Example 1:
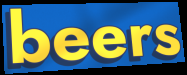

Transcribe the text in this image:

beers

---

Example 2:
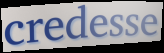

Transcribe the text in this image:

credesse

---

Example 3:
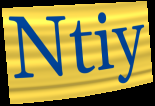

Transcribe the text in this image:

Ntiy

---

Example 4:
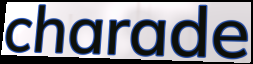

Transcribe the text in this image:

charade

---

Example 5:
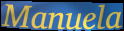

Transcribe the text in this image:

Manuela